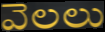
వెలలు